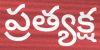
ప్రత్యక్ష